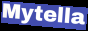
Mytella